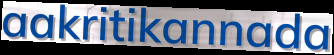
aakritikannada